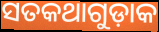
ସତକଥାଗୁଡ଼ାକ